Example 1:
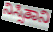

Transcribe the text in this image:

ನಿಸ್ಸಿತಾನಿ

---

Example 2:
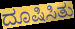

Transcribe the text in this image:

ದೂಷಿಸಿತು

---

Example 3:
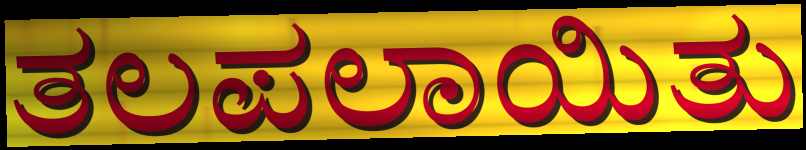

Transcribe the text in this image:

ತಲಪಲಾಯಿತು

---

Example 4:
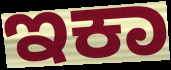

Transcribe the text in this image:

ಇಕಾ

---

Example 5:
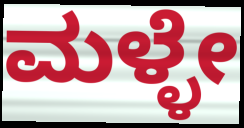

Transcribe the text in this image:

ಮಳ್ಳೇ